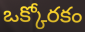
ఒక్కోరకం